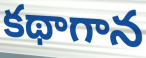
కథాగాన